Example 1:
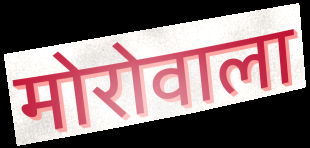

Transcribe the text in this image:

मोरोवाला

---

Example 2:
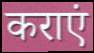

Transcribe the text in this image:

कराएं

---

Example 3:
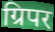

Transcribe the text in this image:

ग्रिपर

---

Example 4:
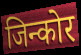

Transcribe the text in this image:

जिन्कोर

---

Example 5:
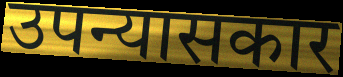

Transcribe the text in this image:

उपन्यासकार